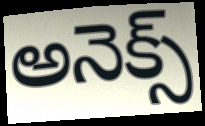
అనెక్స్